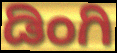
ಡಿಂಗಿ